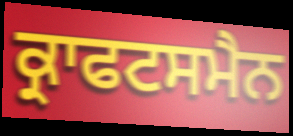
ਕ੍ਰਾਫਟਸਮੈਨ